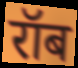
रॉब